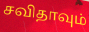
சவிதாவும்